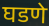
घडणे